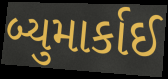
બ્યુમાર્કાઈ